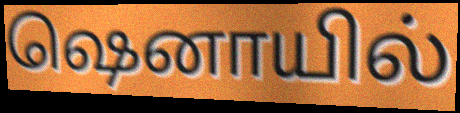
ஷெனாயில்